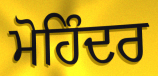
ਮੋਹਿੰਦਰ